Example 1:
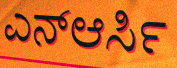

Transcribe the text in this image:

ಎನ್ಆರ್ಸಿ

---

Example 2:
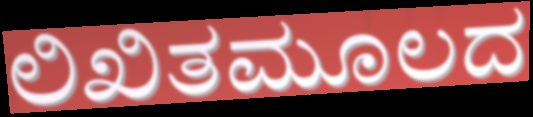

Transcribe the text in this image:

ಲಿಖಿತಮೂಲದ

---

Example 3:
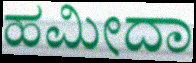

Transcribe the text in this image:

ಹಮೀದಾ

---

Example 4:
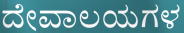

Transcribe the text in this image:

ದೇವಾಲಯಗಳ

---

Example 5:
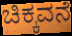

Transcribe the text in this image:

ಚಿಕ್ಕವನೆ